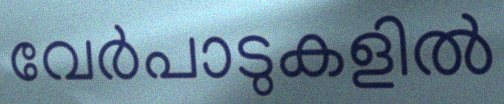
വേർപാടുകളിൽ